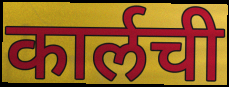
कार्लची